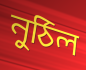
নুঠিল